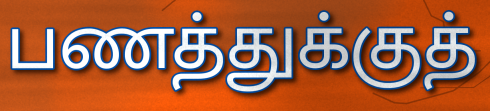
பணத்துக்குத்